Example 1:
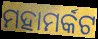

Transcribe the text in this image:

ମହାମର୍କଟ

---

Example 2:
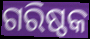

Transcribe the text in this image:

ଗରିଷ୍ଠକ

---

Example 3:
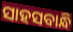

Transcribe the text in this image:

ସାହସବାନ୍ଧି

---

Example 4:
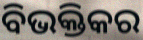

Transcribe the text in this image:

ବିଭକ୍ତିକର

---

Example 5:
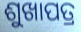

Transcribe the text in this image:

ଶୁଖାପତ୍ର